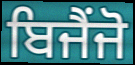
ਬਿਜੈਂਜੋ